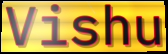
Vishu